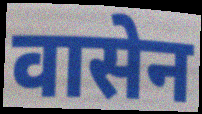
वासेन